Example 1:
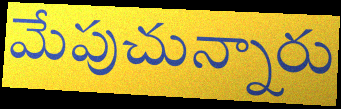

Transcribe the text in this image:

మేపుచున్నారు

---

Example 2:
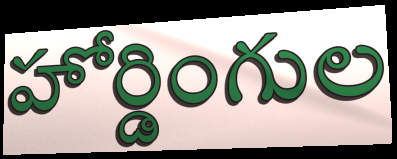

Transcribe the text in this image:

హోర్డింగుల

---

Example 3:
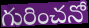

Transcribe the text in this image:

గురించనో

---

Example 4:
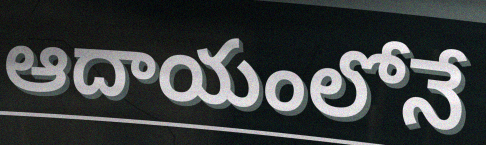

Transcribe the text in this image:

ఆదాయంలోనే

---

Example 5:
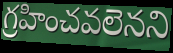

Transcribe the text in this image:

గ్రహించవలెనని